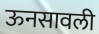
ऊनसावली